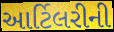
આર્ટિલરીની